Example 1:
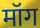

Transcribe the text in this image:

मॉग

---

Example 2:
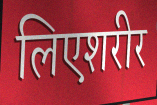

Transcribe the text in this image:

लिएशरीर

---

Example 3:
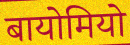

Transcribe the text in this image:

बायोमियो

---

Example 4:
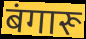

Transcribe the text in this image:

बंगारू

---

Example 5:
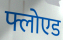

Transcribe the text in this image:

फ्लोएड